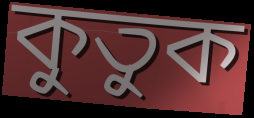
কুতুক